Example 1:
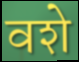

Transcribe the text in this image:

वशे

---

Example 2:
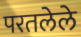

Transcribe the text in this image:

परतलेले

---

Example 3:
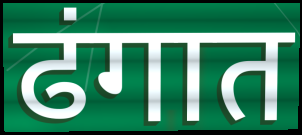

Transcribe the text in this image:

ढंगात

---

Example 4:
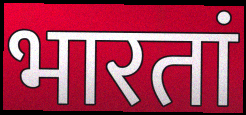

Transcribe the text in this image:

भारतां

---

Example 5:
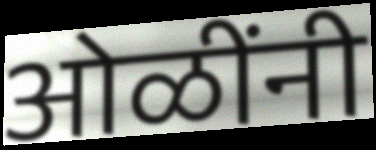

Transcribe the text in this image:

ओळींनी